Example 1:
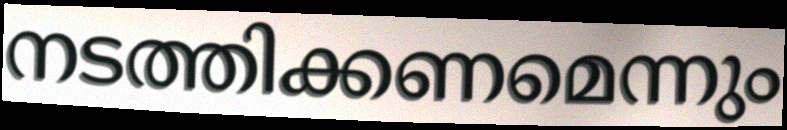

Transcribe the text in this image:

നടത്തിക്കണമെന്നും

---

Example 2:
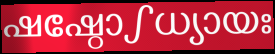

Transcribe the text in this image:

ഷഷ്ഠോഽധ്യായഃ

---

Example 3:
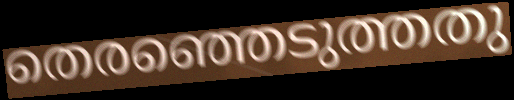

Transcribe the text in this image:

തെരഞ്ഞെടുത്തതു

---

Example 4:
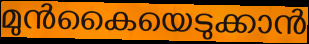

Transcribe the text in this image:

മുൻകൈയെടുക്കാൻ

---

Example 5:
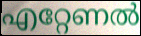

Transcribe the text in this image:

എറ്റേണൽ